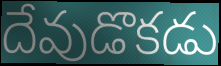
దేవుడొకడు